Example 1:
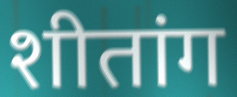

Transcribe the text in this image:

शीतांग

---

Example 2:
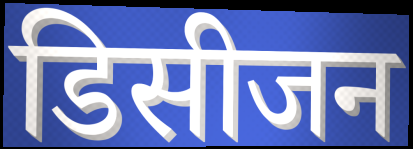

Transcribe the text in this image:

डिसीजन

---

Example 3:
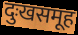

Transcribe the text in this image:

दुःखसमूह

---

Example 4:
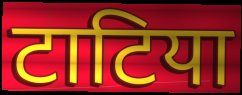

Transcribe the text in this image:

टाटिया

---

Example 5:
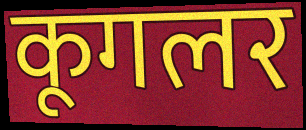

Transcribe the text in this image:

कूगलर